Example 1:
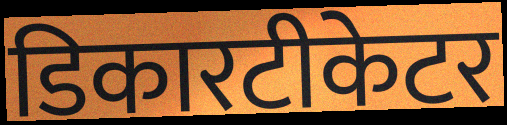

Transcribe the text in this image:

डिकारटीकेटर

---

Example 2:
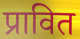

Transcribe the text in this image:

प्रावित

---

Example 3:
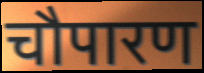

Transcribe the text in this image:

चौपारण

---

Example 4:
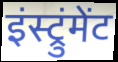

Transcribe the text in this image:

इंस्ट्रुंमेंट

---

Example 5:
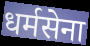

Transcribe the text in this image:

धर्मसेना